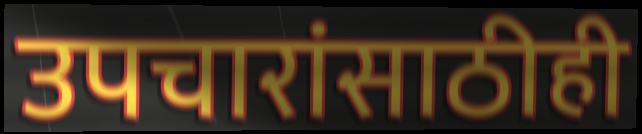
उपचारांसाठीही